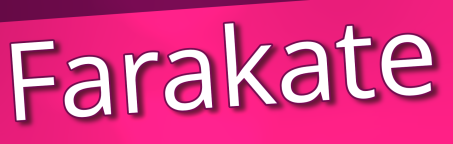
Farakate